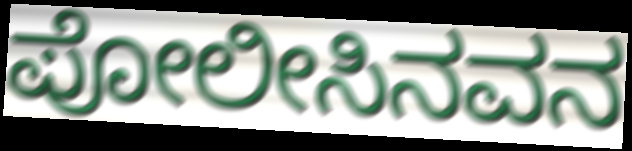
ಪೋಲೀಸಿನವನ